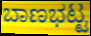
ಬಾಣಭಟ್ಟ